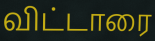
விட்டாரை